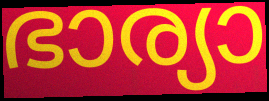
ഭാര്യാ